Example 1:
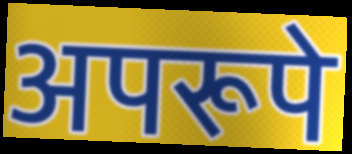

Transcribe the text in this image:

अपरूपे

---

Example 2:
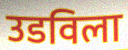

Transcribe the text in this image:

उडविला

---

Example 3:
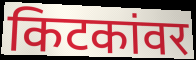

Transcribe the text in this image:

किटकांवर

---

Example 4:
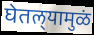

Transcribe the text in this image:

घेतल्यामुळं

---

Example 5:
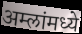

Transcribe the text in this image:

अम्लांमध्ये